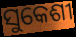
ସୁକେଶୀ